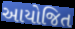
આયોજિત